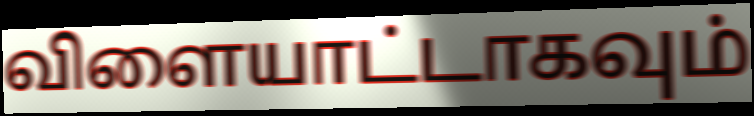
விளையாட்டாகவும்